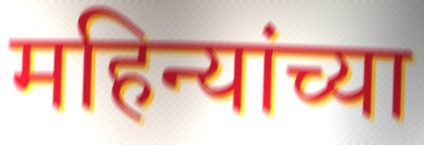
महिन्यांच्या